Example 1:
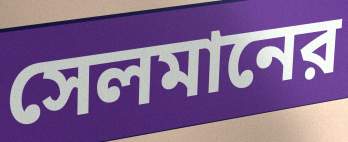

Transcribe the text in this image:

সেলমানের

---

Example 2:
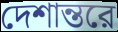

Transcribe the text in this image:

দেশান্তরে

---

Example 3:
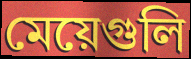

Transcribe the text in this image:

মেয়েগুলি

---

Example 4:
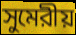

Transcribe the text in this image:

সুমেরীয়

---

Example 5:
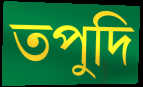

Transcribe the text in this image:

তপুদি